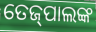
ତେଜ୍‌ପାଲଙ୍କ